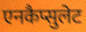
एनकैप्सुलेट